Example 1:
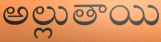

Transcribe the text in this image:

అల్లుతాయి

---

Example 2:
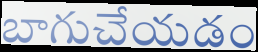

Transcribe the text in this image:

బాగుచేయడం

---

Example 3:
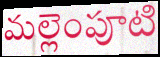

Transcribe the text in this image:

మల్లెంపూటి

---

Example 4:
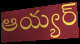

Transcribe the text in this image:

ఆయ్యర్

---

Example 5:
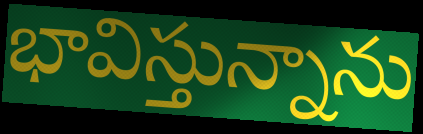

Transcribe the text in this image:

భావిస్తున్నాను